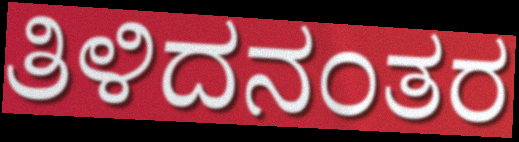
ತಿಳಿದನಂತರ